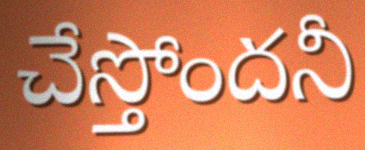
చేస్తోందనీ